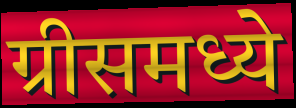
ग्रीसमध्ये